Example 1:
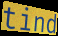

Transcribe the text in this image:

tind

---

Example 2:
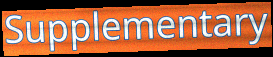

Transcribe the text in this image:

Supplementary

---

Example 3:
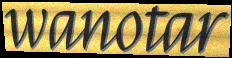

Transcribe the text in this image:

wanotar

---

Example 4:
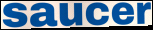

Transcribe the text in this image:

saucer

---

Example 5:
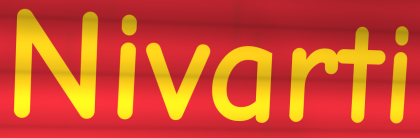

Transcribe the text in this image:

Nivarti